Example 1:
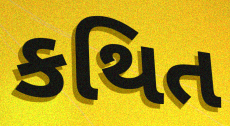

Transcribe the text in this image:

કથિત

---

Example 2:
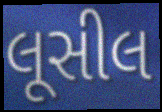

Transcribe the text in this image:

લૂસીલ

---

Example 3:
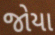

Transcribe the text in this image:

જોયા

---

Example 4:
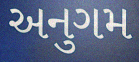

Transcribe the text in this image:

અનુગમ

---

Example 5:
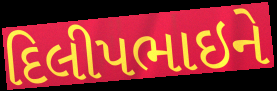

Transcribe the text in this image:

દિલીપભાઇને